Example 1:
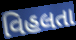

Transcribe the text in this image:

વિહલતા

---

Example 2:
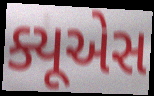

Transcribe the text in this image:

ક્યૂએસ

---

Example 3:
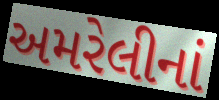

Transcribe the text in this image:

અમરેલીનાં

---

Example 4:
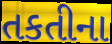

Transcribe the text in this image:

તકતીના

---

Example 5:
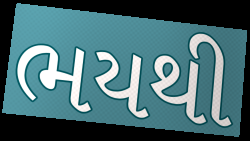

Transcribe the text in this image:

ભયથી